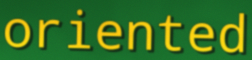
oriented